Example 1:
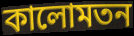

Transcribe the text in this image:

কালোমতন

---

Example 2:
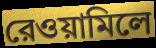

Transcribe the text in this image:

রেওয়ামিলে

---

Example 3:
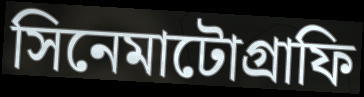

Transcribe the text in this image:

সিনেমাটোগ্রাফি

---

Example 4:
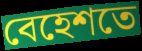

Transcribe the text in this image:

বেহেশতে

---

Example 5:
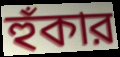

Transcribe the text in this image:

হুঁকার